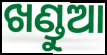
ଖଣ୍ଡୁଆ